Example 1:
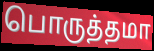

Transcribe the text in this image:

பொருத்தமா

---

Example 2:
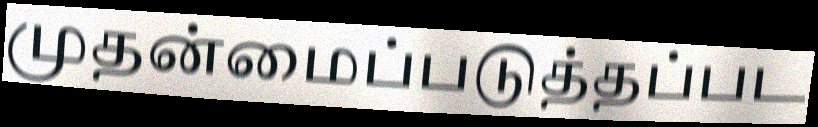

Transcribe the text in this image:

முதன்மைப்படுத்தப்பட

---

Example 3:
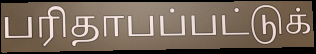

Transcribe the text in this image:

பரிதாபப்பட்டுக்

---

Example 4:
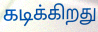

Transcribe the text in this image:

கடிக்கிறது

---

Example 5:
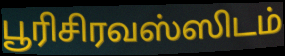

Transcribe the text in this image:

பூரிசிரவஸ்ஸிடம்